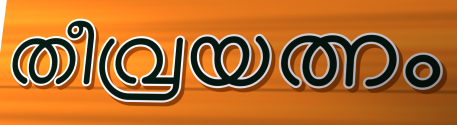
തീവ്രയത്നം